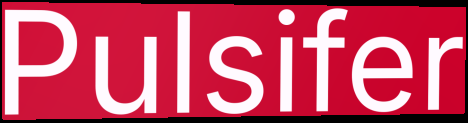
Pulsifer